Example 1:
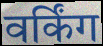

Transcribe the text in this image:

वर्किंग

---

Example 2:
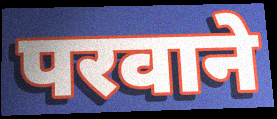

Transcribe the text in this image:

परवाने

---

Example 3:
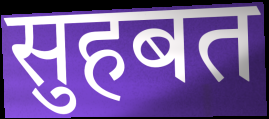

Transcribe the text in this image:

सुहबत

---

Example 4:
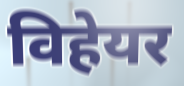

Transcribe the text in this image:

विहेयर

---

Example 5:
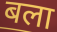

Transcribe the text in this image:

बला